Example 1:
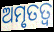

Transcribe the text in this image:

ଅମୃତତ୍ବ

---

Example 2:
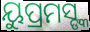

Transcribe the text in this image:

ୟୁପ୍ରମସ୍ଙ୍କ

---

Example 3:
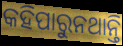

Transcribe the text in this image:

କହିପାରୁନଥାନ୍ତି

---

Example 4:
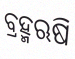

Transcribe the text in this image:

ବ୍ରହ୍ମଋଷି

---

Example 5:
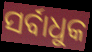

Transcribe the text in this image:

ସର୍ବାଧୁକ